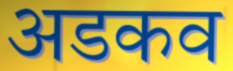
अडकव